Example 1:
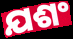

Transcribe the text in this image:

ଯଶଂ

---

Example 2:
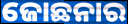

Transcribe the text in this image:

ଜୋଛନାର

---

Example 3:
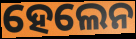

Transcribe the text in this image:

ହେଲେନ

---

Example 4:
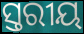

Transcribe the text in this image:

ସ୍ତରୀୟ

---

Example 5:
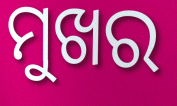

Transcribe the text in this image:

ମୁଖର